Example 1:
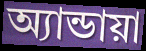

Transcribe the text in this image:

অ্যান্ডায়া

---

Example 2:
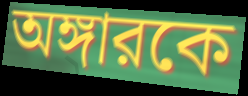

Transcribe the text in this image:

অঙ্গারকে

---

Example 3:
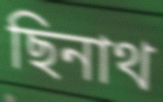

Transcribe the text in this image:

ছিনাথ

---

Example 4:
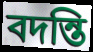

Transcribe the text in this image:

বদন্তি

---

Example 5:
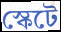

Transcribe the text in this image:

স্কেটে